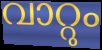
വാറ്റും